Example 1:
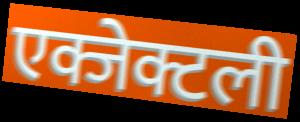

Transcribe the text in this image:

एक्जेक्टली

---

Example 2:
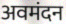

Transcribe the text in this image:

अवमंदन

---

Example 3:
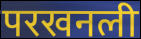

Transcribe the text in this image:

परखनली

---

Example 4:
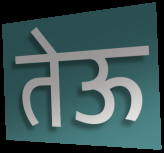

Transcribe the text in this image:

तेऊ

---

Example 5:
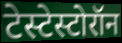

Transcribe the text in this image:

टेस्टेस्टोरॉन